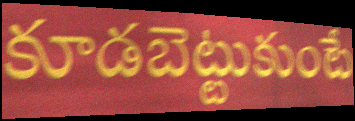
కూడబెట్టుకుంటే